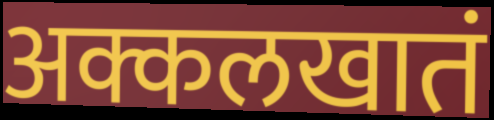
अक्कलखातं